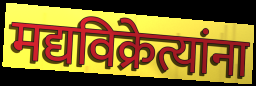
मद्यविक्रेत्यांना